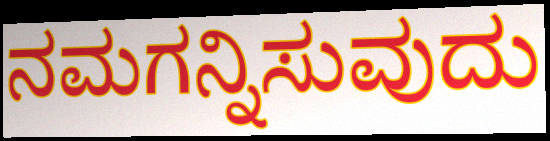
ನಮಗನ್ನಿಸುವುದು